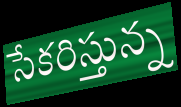
సేకరిస్తున్న